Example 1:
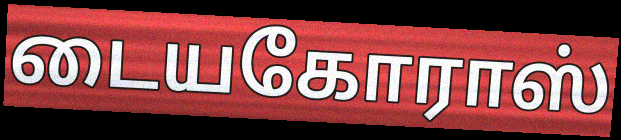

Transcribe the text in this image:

டையகோராஸ்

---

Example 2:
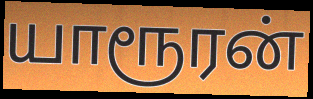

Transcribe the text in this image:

யாரூரன்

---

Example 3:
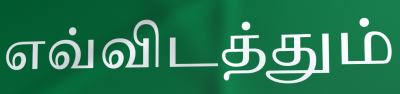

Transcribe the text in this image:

எவ்விடத்தும்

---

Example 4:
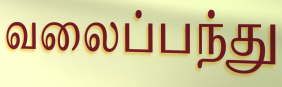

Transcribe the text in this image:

வலைப்பந்து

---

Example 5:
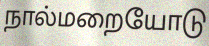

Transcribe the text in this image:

நால்மறையோடு